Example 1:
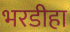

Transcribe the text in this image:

भरडीहा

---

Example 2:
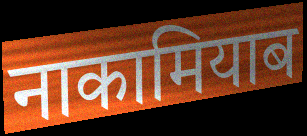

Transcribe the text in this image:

नाकामियाब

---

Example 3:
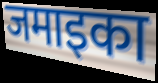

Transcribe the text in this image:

जमाइका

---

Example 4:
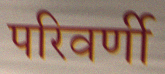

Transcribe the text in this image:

परिवर्णी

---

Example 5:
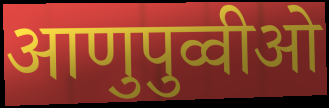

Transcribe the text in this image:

आणुपुव्वीओ